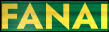
FANAI